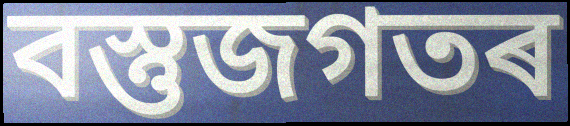
বস্তুজগতৰ